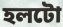
হলটো